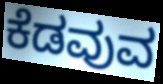
ಕೆಡವುವ